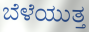
ಬೆಳೆಯುತ್ತ